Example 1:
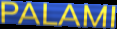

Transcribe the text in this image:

PALAMI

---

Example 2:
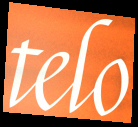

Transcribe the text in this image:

telo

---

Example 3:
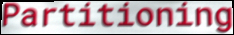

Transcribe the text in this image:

Partitioning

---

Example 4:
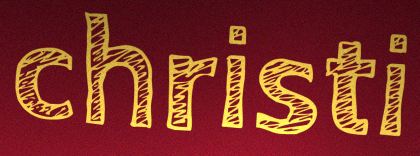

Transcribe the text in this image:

christi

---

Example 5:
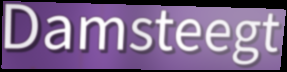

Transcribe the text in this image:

Damsteegt